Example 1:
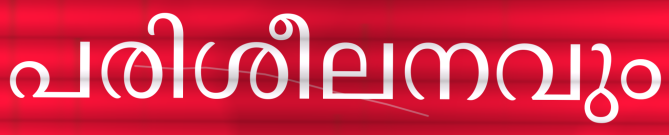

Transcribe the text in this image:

പരിശീലനവും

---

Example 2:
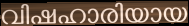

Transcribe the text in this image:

വിഷഹാരിയായ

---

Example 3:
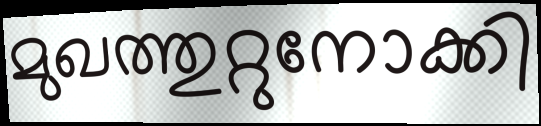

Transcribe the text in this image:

മുഖത്തുറ്റുനോക്കി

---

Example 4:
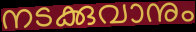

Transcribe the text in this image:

നടക്കുവാനും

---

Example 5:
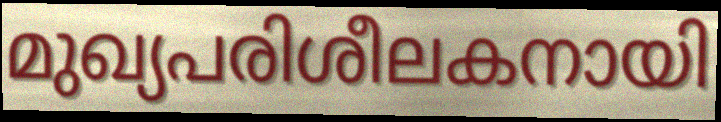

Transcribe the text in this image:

മുഖ്യപരിശീലകനായി